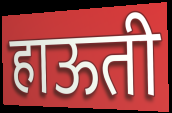
हाऊती